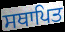
ਸਥਾਪਿਤ